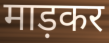
माड़कर